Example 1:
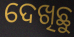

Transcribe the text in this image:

ଦେଖିଛୁ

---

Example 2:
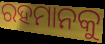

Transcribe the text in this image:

ରହମାନକୁ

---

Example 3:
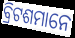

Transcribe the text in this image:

ବ୍ରିଟଶମାନେ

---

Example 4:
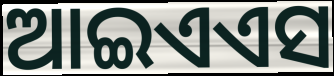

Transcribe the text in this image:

ଆଇଏଏସ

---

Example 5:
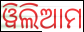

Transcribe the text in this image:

ୱିଲିଆମ